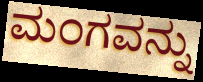
ಮಂಗವನ್ನು